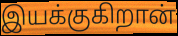
இயக்குகிறான்